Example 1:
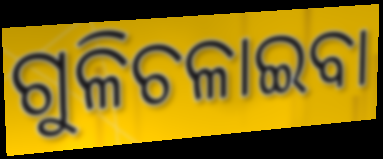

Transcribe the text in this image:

ଗୁଳିଚଳାଇବା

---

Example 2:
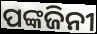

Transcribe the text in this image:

ପଙ୍କଜିନୀ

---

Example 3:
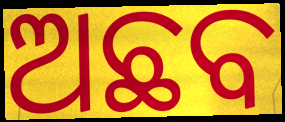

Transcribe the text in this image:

ଅଛବ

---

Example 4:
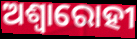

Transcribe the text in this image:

ଅଶ୍ଵାରୋହୀ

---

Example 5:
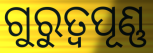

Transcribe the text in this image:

ଗୁରୁତ୍ବପୂଣ୍ଣ